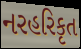
નરહરિકૃત